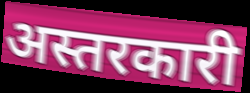
अस्तरकारी